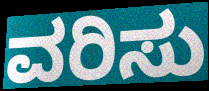
ವರಿಸು